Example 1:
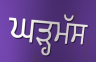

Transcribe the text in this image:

ਘੜ੍ਹਮੱਸ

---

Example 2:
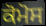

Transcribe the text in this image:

ਕੋਮੋਸ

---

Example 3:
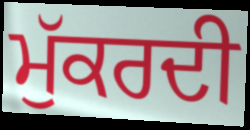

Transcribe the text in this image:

ਮੁੱਕਰਦੀ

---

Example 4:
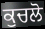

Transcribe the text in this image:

ਕੁਚਲੋ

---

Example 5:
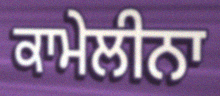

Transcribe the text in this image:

ਕਾਮੇਲੀਨਾ